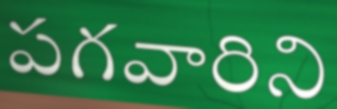
పగవారిని